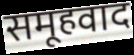
समूहवाद